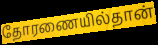
தோரணையில்தான்